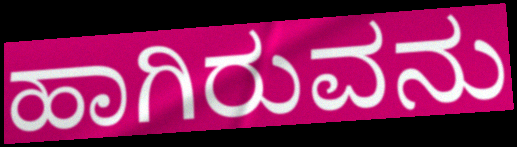
ಹಾಗಿರುವನು